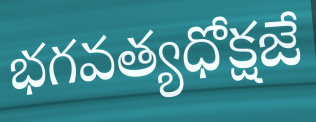
భగవత్యధోక్షజే